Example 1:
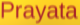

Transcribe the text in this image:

Prayata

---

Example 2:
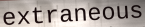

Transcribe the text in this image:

extraneous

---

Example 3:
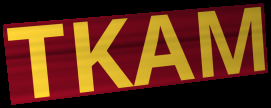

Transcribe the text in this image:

TKAM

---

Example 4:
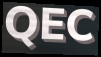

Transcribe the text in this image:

QEC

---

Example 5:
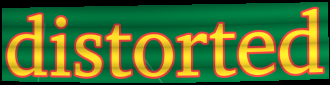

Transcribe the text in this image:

distorted